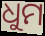
ଧୁମ